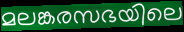
മലങ്കരസഭയിലെ